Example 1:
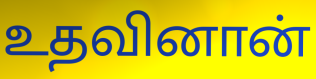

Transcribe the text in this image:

உதவினான்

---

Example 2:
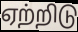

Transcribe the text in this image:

ஏற்றிடு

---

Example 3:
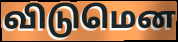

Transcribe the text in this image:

விடுமென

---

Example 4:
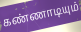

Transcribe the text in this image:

கண்ணாடியும்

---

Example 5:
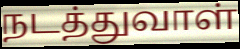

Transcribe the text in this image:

நடத்துவாள்